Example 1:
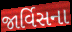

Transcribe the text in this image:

જાર્વિસના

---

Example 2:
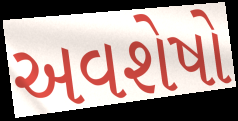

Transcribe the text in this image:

અવશેષો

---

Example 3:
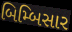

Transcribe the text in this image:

બિમ્બિસાર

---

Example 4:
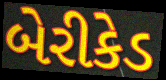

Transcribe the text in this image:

બેરીકેડ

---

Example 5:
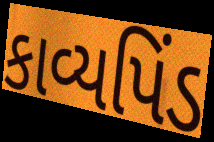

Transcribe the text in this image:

કાવ્યપિંડ